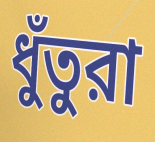
ধুঁতুরা